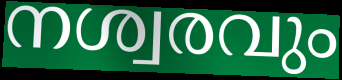
നശ്വരവും